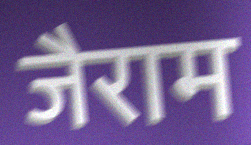
जैराम